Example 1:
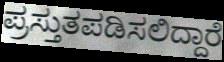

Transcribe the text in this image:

ಪ್ರಸ್ತುತಪಡಿಸಲಿದ್ದಾರೆ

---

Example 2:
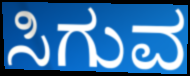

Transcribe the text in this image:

ಸಿಗುವ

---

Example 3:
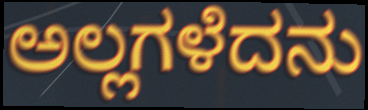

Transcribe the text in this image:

ಅಲ್ಲಗಳೆದನು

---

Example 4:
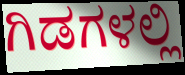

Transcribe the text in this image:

ಗಿಡಗಳಲ್ಲಿ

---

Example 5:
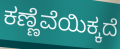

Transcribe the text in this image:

ಕಣ್ಣೆವೆಯಿಕ್ಕದೆ